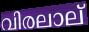
വിരലാല്